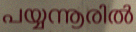
പയ്യന്നൂരിൽ